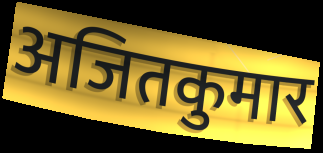
अजितकुमार